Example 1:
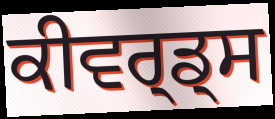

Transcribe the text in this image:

ਕੀਵਰ੍ਡ੍ਸ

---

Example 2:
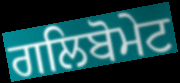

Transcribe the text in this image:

ਗਲਿਬੋਮੇਟ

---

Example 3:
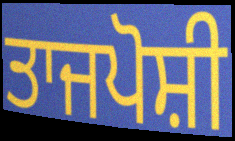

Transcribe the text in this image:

ਤਾਜਪੋਸ਼ੀ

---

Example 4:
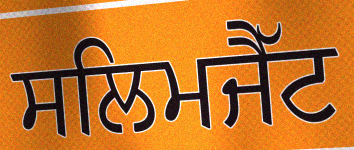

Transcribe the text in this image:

ਸਲਿਮਜੈੱਟ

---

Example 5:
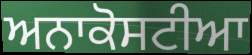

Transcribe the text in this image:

ਅਨਾਕੋਸਟੀਆ